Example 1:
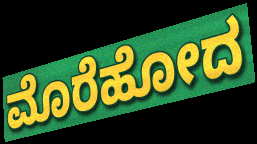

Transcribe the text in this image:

ಮೊರೆಹೋದ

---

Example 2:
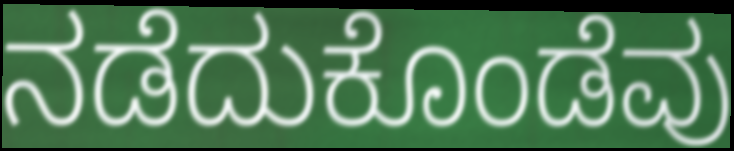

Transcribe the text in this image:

ನಡೆದುಕೊಂಡೆವು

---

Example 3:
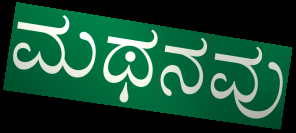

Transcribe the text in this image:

ಮಥನವು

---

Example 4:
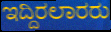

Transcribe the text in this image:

ಇದ್ದಿರಲಾರರು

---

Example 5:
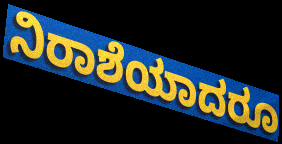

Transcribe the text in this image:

ನಿರಾಶೆಯಾದರೂ